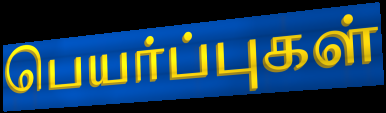
பெயர்ப்புகள்